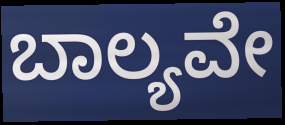
ಬಾಲ್ಯವೇ